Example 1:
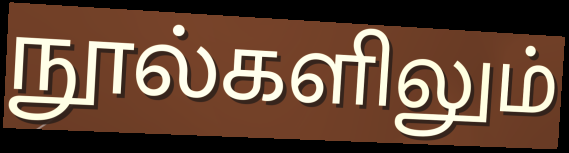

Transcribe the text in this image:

நூல்களிலும்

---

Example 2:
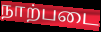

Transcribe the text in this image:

நாற்படை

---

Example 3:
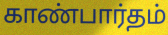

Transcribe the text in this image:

காண்பார்தம்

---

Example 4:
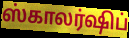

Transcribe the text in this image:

ஸ்காலர்ஷிப்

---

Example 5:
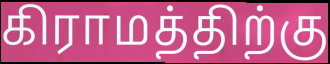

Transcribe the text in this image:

கிராமத்திற்கு